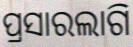
ପ୍ରସାରଲାଗି